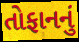
તોફાનનું